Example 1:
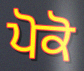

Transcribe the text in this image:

ਪੋਕੋ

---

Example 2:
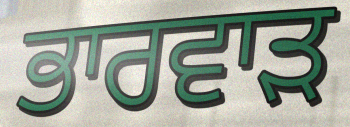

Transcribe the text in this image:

ਭਾਰਵਾੜ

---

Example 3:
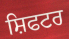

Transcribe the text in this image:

ਸ਼ਿਫਟਰ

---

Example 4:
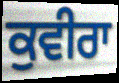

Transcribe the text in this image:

ਕੁਵੀਰਾ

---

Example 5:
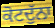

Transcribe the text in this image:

ਕੋਟਦੁੱਨਾ